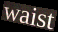
waist